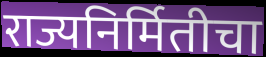
राज्यनिर्मितीचा